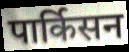
पार्किसन